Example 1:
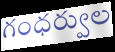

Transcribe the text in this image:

గంధర్వుల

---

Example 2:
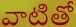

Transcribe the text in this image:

వాటితో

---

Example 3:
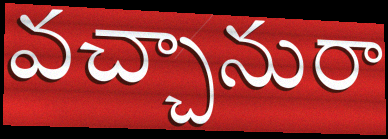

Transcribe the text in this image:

వచ్చానురా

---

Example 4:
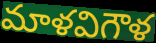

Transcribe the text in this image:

మాళవిగౌళ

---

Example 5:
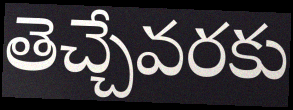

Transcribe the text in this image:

తెచ్చేవరకు